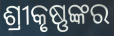
ଶ୍ରୀକୃଷ୍ଣଙ୍କର